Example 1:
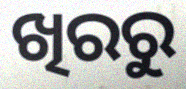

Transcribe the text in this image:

ଖିରରୁ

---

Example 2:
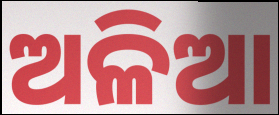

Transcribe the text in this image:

ଅଳିଆ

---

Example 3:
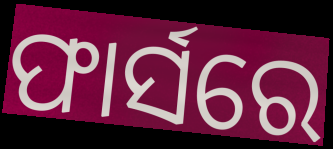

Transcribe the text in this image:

ଫାର୍ସରେ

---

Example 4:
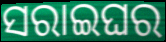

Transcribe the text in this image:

ସରାଇଘର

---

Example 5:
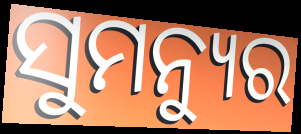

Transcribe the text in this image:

ସୁମନ୍ୟୁର